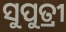
ସୁପୁତ୍ରୀ